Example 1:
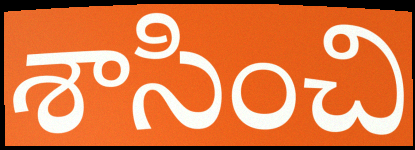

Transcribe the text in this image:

శాసించి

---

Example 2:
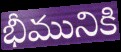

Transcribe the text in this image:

భీమునికి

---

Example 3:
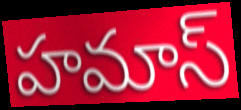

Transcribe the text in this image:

హమాస్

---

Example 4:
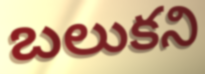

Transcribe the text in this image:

బలుకని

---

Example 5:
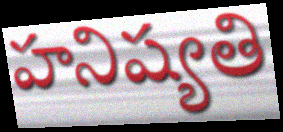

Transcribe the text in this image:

హనిష్యతి